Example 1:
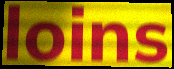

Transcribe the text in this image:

loins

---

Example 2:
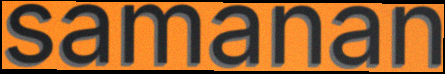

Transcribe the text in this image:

samanan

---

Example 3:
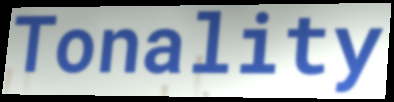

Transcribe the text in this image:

Tonality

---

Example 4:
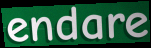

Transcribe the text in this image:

endare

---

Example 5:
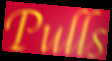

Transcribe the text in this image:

Pulls